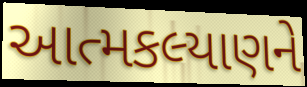
આત્મકલ્યાણને